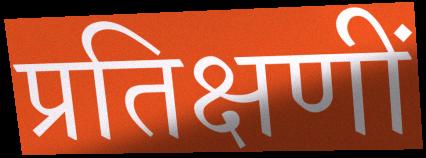
प्रतिक्षणीं